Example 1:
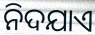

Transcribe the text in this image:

ନିଦଯାଏ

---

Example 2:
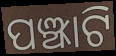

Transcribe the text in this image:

ପଞ୍ଝାଟି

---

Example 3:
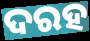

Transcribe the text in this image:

ଦରହ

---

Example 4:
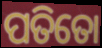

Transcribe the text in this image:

ପତିତୋ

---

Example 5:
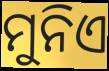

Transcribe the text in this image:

ମୁନିଏ